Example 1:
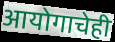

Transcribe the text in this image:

आयोगाचेही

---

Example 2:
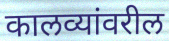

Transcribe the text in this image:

कालव्यांवरील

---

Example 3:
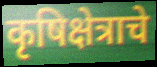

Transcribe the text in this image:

कृषिक्षेत्राचे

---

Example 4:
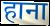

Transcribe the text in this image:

हाना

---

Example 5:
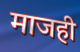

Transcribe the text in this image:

माजही